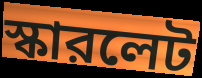
স্কারলেট